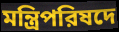
মন্ত্রিপরিষদে